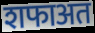
शफाअत